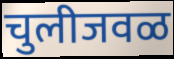
चुलीजवळ